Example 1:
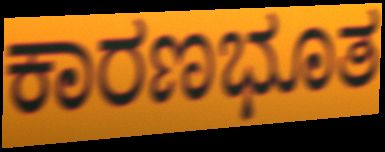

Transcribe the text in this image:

ಕಾರಣಭೂತ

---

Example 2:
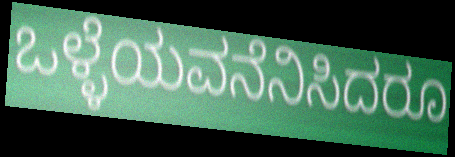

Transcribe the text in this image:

ಒಳ್ಳೆಯವನೆನಿಸಿದರೂ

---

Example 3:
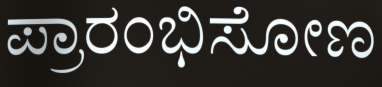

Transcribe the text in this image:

ಪ್ರಾರಂಭಿಸೋಣ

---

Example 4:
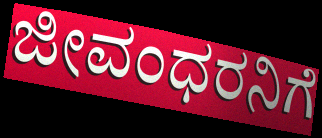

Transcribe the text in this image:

ಜೀವಂಧರನಿಗೆ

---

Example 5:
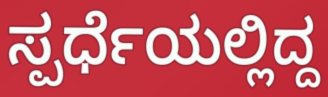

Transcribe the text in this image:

ಸ್ಪರ್ಧೆಯಲ್ಲಿದ್ದ